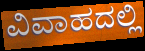
ವಿವಾಹದಲ್ಲಿ